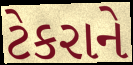
ટેકરાને